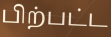
பிற்பட்ட